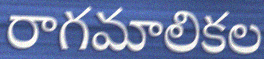
రాగమాలికల